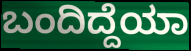
ಬಂದಿದ್ದೆಯಾ